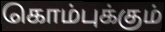
கொம்புக்கும்